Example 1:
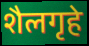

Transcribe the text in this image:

शैलगृहे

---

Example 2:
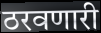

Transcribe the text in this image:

ठरवणारी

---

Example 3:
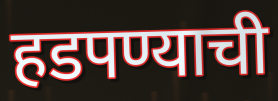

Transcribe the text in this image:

हडपण्याची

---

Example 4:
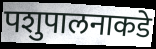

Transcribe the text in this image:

पशुपालनाकडे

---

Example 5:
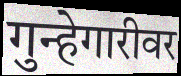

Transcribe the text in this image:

गुन्हेगारीवर